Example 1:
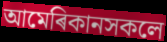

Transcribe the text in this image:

আমেৰিকানসকলে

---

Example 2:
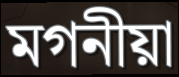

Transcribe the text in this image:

মগনীয়া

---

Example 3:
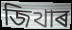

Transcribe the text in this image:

জিথাৰ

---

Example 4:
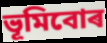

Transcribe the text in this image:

ভূমিবোৰ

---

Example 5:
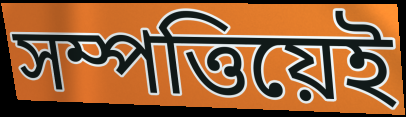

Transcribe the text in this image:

সম্পত্তিয়েই